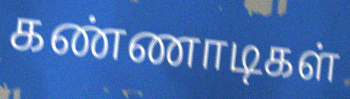
கண்ணாடிகள்